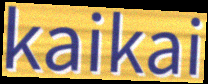
kaikai